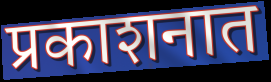
प्रकाशनात